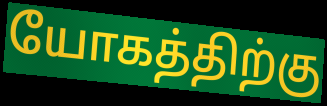
யோகத்திற்கு